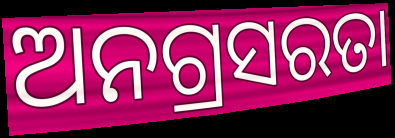
ଅନଗ୍ରସରତା